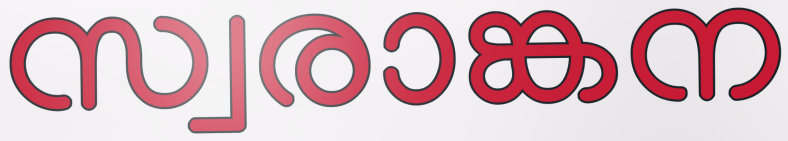
സ്വരാങ്കന